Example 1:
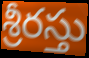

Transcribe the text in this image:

శ్రీరస్తు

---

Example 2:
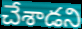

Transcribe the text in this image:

చేశాడని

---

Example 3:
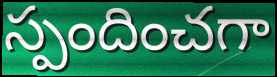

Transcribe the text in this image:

స్పందించగా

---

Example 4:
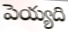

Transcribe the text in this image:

పెయ్యది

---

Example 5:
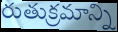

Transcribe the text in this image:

రుతుక్రమాన్ని